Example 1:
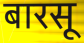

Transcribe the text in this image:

बारसू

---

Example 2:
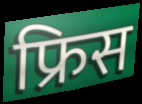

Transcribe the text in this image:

फ्रिस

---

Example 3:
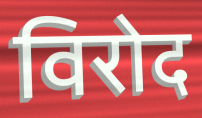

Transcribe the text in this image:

विरोद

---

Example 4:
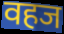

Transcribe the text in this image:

वहज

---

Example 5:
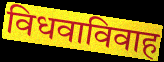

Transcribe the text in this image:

विधवाविवाह